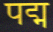
पद्म